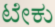
ಟೇಕು